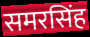
समरसिंह